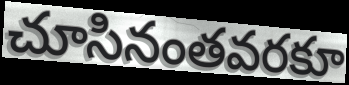
చూసినంతవరకూ